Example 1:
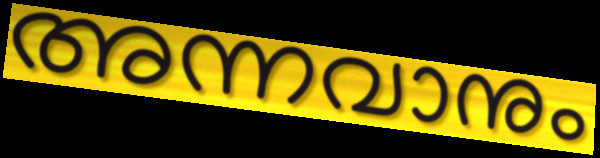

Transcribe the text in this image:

അന്നവാനും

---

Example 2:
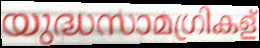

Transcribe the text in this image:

യുദ്ധസാമഗ്രികള്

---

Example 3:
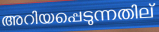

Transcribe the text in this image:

അറിയപ്പെടുന്നതില്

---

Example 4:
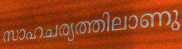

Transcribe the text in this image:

സാഹചര്യത്തിലാണു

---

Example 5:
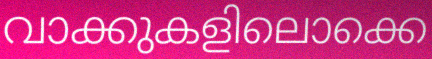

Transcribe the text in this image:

വാക്കുകളിലൊക്കെ